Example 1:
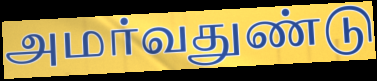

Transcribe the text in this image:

அமர்வதுண்டு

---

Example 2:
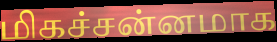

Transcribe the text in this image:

மிகச்சன்னமாக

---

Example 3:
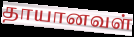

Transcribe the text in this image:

தாயானவள்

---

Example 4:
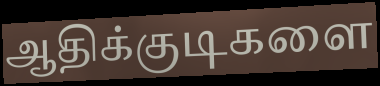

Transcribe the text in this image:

ஆதிக்குடிகளை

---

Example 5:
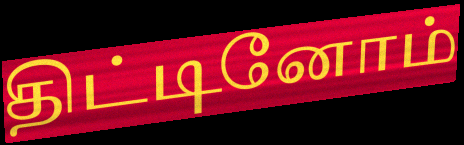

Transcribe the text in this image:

திட்டினோம்